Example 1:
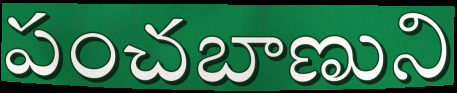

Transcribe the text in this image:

పంచబాణుని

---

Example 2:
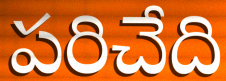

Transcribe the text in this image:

పరిచేది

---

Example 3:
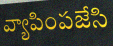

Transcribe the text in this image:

వ్యాపింపజేసి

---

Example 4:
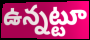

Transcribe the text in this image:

ఉన్నట్టూ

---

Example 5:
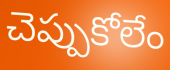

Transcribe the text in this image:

చెప్పుకోలేం